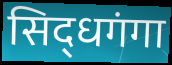
सिद्धगंगा